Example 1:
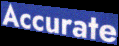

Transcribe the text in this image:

Accurate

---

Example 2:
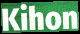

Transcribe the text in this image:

Kihon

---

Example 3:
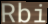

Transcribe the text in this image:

Rbi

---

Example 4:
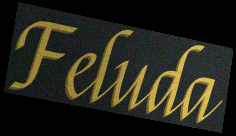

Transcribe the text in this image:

Feluda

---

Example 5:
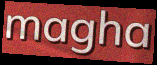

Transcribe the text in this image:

magha